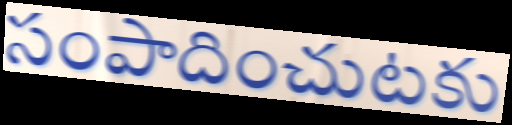
సంపాదించుటకు